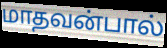
மாதவன்பால்